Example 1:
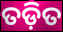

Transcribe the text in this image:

ତଡ଼ିତ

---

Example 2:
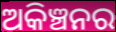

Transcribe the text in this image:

ଅକିଞ୍ଚନର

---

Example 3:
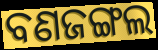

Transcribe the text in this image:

ବଣଜଙ୍ଗଲ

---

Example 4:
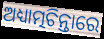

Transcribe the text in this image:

ଅଧ୍ୟାତ୍ମଚିନ୍ତାରେ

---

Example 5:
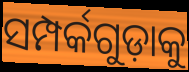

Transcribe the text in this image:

ସମ୍ପର୍କଗୁଡ଼ାକୁ